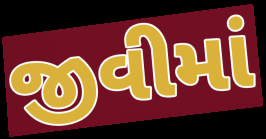
જીવીમાં